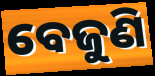
ବେଜୁଣି